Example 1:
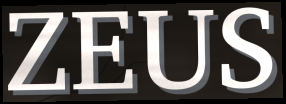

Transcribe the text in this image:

ZEUS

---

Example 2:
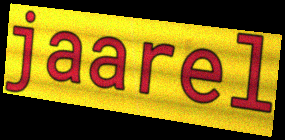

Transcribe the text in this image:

jaarel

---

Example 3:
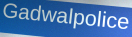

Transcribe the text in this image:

Gadwalpolice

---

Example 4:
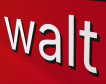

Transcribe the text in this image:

walt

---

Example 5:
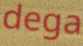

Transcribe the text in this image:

dega